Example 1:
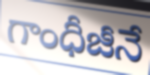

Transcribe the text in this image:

గాంధీజీనే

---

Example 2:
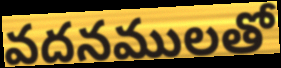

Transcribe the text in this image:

వదనములతో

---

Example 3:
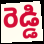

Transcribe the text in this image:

రెడ్డి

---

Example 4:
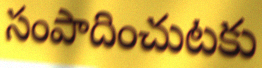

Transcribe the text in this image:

సంపాదించుటకు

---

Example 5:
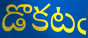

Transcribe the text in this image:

డొకటఁ